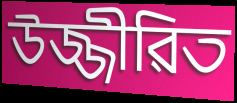
উজ্জীৱিত